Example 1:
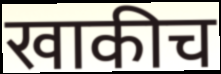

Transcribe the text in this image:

खाकीच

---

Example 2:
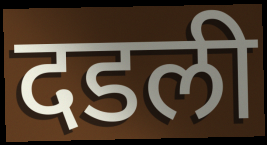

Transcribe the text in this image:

दडली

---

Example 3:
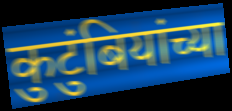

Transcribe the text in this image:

कुटुंबियांच्या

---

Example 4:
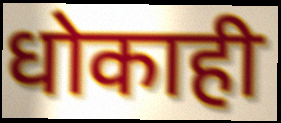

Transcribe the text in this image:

धोकाही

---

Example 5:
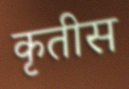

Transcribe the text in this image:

कृतीस